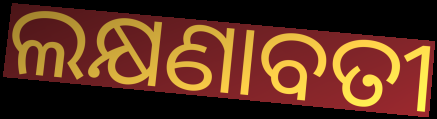
ଲକ୍ଷଣାବତୀ